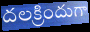
దలక్రిందుగా